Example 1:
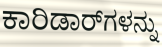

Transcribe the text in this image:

ಕಾರಿಡಾರ್‌ಗಳನ್ನು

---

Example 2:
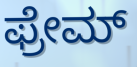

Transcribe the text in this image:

ಫ್ರೇಮ್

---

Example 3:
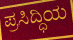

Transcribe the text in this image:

ಪ್ರಸಿದ್ಧಿಯ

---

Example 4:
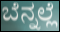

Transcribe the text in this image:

ಬೆನ್ನಲ್ಲೆ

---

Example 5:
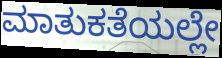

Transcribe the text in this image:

ಮಾತುಕತೆಯಲ್ಲೇ